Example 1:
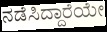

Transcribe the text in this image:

ನಡೆಸಿದ್ದಾರೆಯೇ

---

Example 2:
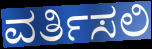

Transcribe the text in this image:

ವರ್ತಿಸಲಿ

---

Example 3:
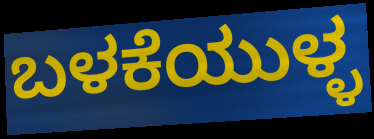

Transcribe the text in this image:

ಬಳಕೆಯುಳ್ಳ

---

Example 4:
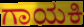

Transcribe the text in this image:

ಗಾಯಕಿ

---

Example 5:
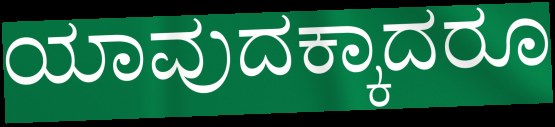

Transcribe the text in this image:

ಯಾವುದಕ್ಕಾದರೂ